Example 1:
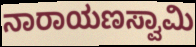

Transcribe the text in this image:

ನಾರಾಯಣಸ್ವಾಮಿ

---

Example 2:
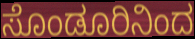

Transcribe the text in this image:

ಸೊಂಡೂರಿನಿಂದ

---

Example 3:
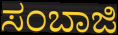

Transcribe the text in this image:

ಸಂಬಾಜಿ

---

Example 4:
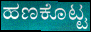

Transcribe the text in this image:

ಹಣಕೊಟ್ಟ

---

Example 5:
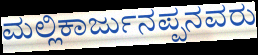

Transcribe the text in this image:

ಮಲ್ಲಿಕಾರ್ಜುನಪ್ಪನವರು